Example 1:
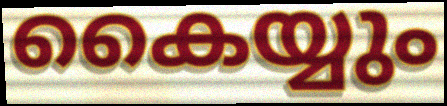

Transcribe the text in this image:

കൈയ്യും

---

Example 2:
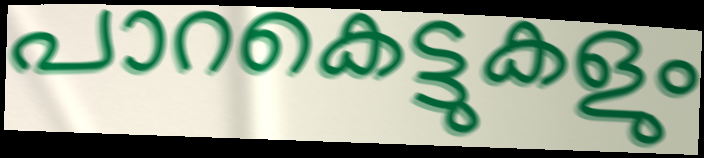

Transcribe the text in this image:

പാറകെട്ടുകളും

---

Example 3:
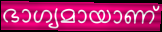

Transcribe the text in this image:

ഭാഗ്യമായാണ്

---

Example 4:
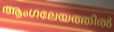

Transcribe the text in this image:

ആംഗലേയത്തിൽ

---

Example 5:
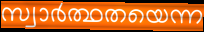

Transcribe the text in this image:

സ്വാർത്ഥതയെന്ന